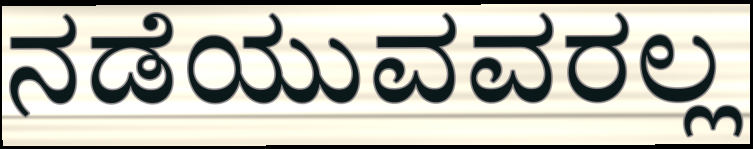
ನಡೆಯುವವರಲ್ಲ